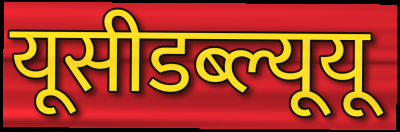
यूसीडब्ल्यूयू